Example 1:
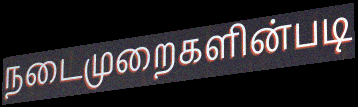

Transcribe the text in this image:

நடைமுறைகளின்படி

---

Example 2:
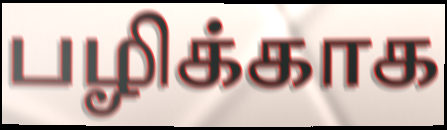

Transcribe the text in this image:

பழிக்காக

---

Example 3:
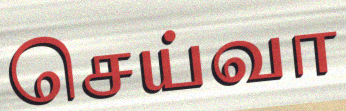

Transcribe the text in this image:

செய்வா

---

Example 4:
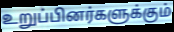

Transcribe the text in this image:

உறுப்பினர்களுக்கும்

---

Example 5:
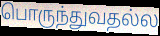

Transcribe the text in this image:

பொருந்துவதல்ல